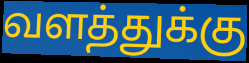
வளத்துக்கு